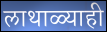
लाथाळ्याही